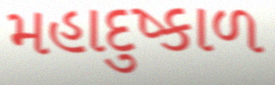
મહાદુષ્કાળ